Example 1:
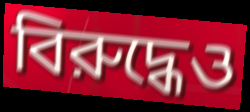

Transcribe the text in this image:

বিরুদ্ধেও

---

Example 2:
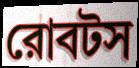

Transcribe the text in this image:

রোবটস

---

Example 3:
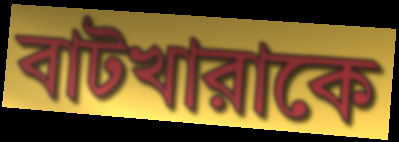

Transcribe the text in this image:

বাটখারাকে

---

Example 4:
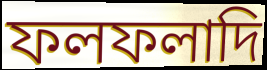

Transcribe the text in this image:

ফলফলাদি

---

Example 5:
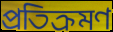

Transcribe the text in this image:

প্রতিক্রমণ